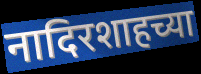
नादिरशाहच्या